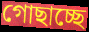
গোছাচ্ছে